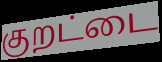
குறட்டை